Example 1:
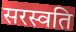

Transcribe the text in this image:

सरस्वति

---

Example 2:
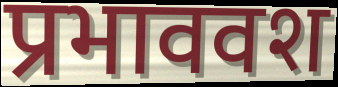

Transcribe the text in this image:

प्रभाववश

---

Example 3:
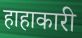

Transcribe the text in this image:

हाहाकारी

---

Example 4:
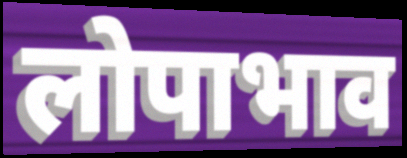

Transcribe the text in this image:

लोपाभाव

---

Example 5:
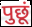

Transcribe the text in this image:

पुछूं